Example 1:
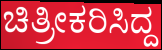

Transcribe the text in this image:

ಚಿತ್ರೀಕರಿಸಿದ್ದ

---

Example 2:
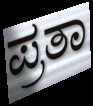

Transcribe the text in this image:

ಪ್ರತಾ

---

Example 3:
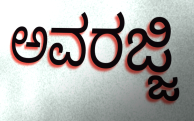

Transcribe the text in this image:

ಅವರಜ್ಜಿ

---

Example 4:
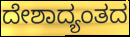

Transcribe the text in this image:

ದೇಶಾದ್ಯಂತದ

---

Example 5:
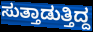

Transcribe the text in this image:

ಸುತ್ತಾಡುತ್ತಿದ್ದ